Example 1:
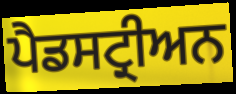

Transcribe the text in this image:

ਪੈਡਸਟ੍ਰੀਅਨ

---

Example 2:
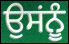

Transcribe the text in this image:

ਉਸਂਨੂੰ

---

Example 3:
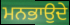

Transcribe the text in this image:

ਮਨਭਾਉਦੇ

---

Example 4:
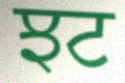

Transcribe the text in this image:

ਝਟ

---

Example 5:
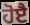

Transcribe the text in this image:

ਹੋੲੈ